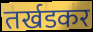
तर्खडकर